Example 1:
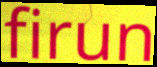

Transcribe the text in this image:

firun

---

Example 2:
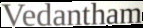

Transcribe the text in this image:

Vedantham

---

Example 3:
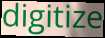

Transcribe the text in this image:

digitize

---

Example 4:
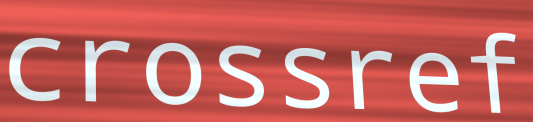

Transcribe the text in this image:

crossref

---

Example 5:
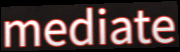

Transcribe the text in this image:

mediate